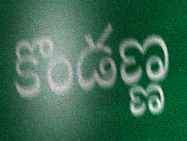
కొండణ్ణ